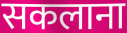
सकलाना